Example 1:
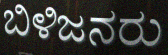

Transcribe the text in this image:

ಬಿಳಿಜನರು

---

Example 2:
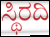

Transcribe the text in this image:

ಸ್ಥಿರದಿ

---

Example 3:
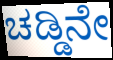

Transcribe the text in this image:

ಚಡ್ಡಿನೇ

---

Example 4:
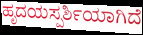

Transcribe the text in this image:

ಹೃದಯಸ್ಪರ್ಶಿಯಾಗಿದೆ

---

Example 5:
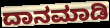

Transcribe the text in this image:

ದಾನಮಾಡಿ